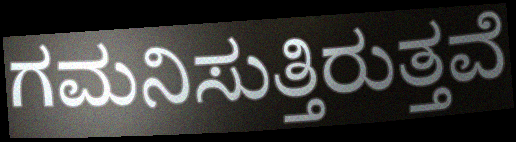
ಗಮನಿಸುತ್ತಿರುತ್ತವೆ